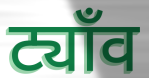
ट्याँव